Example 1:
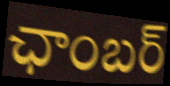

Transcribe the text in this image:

ఛాంబర్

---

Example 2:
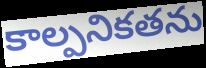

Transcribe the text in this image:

కాల్పనికతను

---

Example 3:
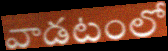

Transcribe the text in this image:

వాడటంలో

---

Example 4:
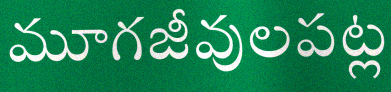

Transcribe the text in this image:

మూగజీవులపట్ల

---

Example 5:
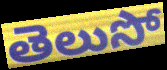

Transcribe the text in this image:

తెలుసో